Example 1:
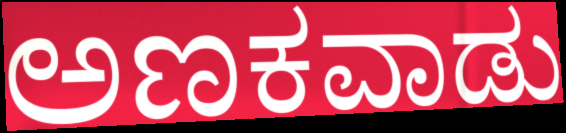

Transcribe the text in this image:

ಅಣಕವಾಡು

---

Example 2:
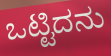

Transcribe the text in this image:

ಒಟ್ಟಿದನು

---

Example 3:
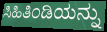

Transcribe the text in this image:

ಸಿಹಿತಿಂಡಿಯನ್ನು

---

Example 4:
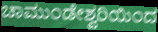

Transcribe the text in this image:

ಚಾಮುಂಡೇಶ್ವರಿಯಿಂದ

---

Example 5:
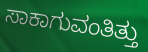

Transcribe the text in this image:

ಸಾಕಾಗುವಂತಿತ್ತು